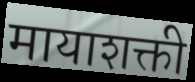
मायाशक्ती